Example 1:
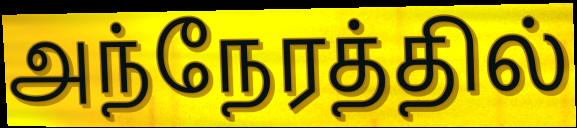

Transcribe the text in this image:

அந்நேரத்தில்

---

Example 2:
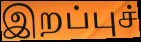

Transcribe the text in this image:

இறப்புச்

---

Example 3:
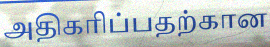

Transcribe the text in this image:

அதிகரிப்பதற்கான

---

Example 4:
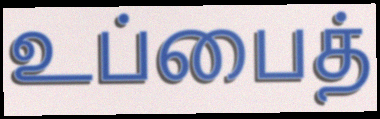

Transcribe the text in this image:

உப்பைத்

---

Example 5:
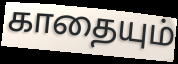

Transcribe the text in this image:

காதையும்